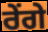
ਰੇਂਗੇ